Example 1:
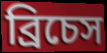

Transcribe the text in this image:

ব্রিচেস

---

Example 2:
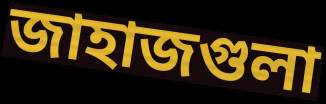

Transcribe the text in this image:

জাহাজগুলা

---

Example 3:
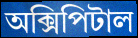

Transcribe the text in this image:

অক্সিপিটাল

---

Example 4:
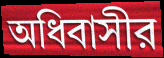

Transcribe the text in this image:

অধিবাসীর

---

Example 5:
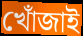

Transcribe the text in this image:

খোঁজাই